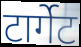
टार्गेट